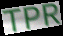
TPR